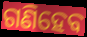
ଗଣିହେବ